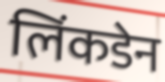
लिंकडेन